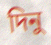
দিনু